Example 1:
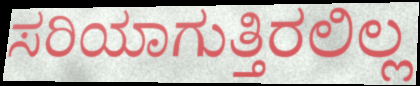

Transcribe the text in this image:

ಸರಿಯಾಗುತ್ತಿರಲಿಲ್ಲ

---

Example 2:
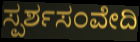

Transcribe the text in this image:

ಸ್ಪರ್ಶಸಂವೇದಿ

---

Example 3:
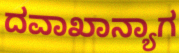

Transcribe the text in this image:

ದವಾಖಾನ್ಯಾಗ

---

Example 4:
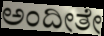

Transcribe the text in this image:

ಅಂದೀತೇ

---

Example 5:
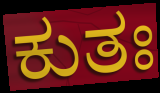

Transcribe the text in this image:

ಕುತಃ